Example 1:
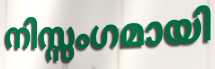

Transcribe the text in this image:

നിസ്സംഗമായി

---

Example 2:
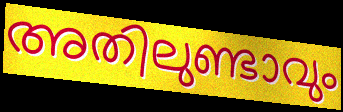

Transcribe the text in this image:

അതിലുണ്ടാവും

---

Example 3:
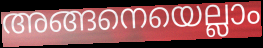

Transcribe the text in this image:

അങ്ങനെയെല്ലാം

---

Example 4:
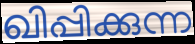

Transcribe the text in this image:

ഖിപ്പിക്കുന്ന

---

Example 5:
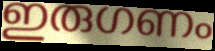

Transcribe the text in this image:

ഇരുഗണം